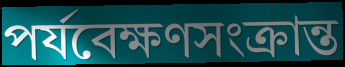
পর্যবেক্ষণসংক্রান্ত